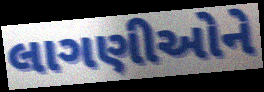
લાગણીઓને